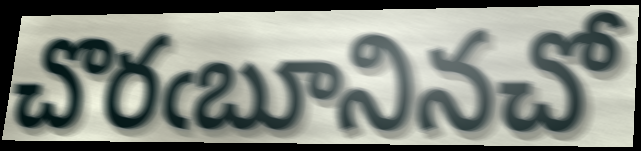
చొరఁబూనినచో